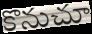
కొనుచూ